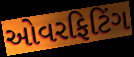
ઓવરફિટિંગ